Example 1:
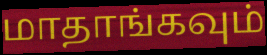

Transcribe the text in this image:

மாதாங்கவும்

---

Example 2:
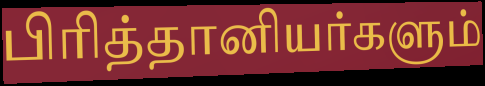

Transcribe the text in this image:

பிரித்தானியர்களும்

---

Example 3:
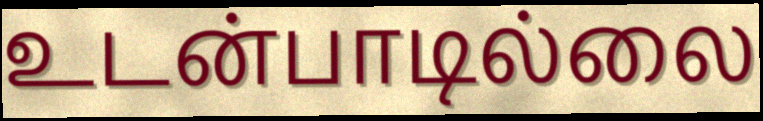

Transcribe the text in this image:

உடன்பாடில்லை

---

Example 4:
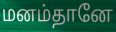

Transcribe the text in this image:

மனம்தானே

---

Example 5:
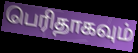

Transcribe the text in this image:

பெரிதாகவும்